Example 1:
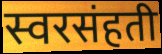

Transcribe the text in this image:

स्वरसंहती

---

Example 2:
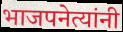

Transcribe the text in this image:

भाजपनेत्यांनी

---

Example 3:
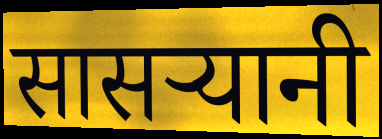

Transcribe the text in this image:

सासऱ्यानी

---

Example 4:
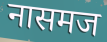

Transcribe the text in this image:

नासमज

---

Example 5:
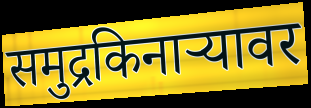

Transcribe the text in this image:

समुद्रकिनाऱ्यावर